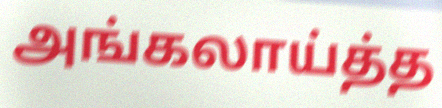
அங்கலாய்த்த